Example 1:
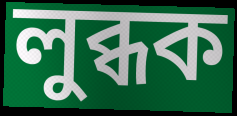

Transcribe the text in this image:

লুব্ধক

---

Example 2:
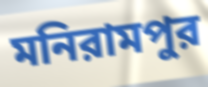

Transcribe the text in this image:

মনিরামপুর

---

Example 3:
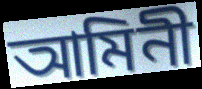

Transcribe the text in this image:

আমিনী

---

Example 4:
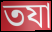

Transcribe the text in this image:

তযা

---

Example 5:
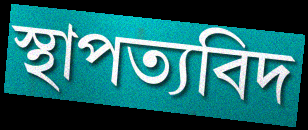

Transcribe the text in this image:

স্থাপত্যবিদ